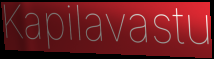
Kapilavastu